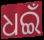
ଧଇଁ